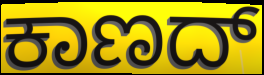
ಕಾಣದ್